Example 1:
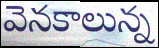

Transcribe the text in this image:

వెనకాలున్న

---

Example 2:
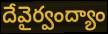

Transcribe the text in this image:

దేవైర్వంద్యాం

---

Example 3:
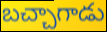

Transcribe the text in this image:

బచ్చాగాడు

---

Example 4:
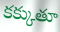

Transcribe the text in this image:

కక్కుతూ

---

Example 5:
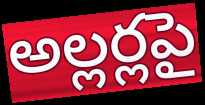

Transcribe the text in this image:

అల్లర్లపై